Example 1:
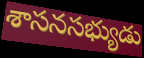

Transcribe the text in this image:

శాసనసభ్యుడు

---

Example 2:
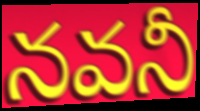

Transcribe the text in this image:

నవనీ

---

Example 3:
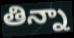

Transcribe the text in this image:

తిన్నా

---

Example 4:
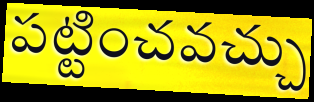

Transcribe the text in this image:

పట్టించవచ్చు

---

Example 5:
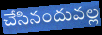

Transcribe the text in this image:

చేసినందువల్ల